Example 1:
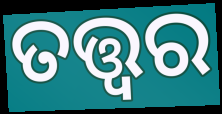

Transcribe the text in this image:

ତତ୍ତ୍ବର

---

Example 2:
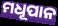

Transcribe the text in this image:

ମଧୂପାନ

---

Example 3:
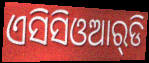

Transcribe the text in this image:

ଏସିସିଓଆର୍‌ଡି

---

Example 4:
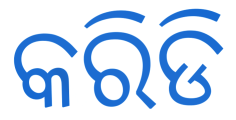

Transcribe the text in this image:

କରିଡି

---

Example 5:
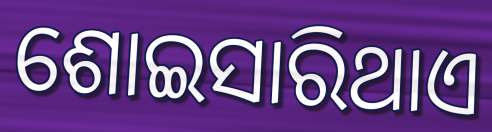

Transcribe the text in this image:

ଶୋଇସାରିଥାଏ